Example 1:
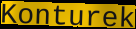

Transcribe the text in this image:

Konturek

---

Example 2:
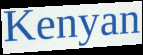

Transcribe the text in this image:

Kenyan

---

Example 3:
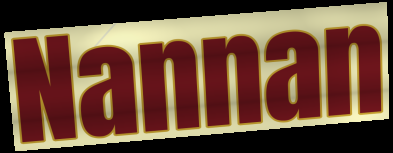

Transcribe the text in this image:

Nannan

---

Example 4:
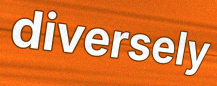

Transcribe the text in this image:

diversely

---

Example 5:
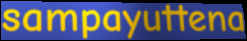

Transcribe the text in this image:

sampayuttena